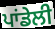
ਪਾਂਡੇਲੀ